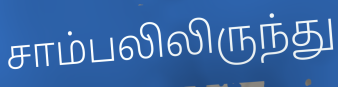
சாம்பலிலிருந்து